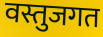
वस्तुजगत